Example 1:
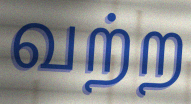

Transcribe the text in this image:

வற்ற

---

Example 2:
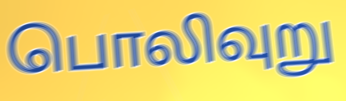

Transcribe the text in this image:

பொலிவுறு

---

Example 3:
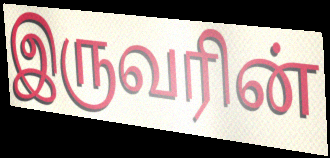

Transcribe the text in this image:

இருவரின்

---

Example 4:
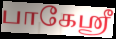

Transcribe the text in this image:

பாகேஸ்ரீ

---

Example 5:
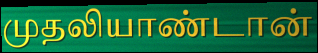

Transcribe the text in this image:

முதலியாண்டான்